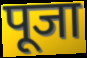
पूजा